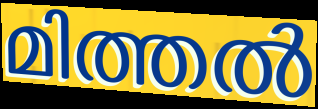
മിത്തൽ